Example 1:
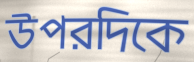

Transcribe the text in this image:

উপরদিকে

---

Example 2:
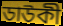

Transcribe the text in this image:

ডাউকী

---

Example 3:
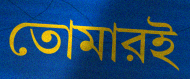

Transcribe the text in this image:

তোমারই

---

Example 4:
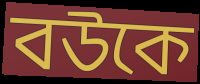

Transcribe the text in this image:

বউকে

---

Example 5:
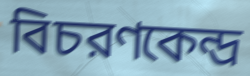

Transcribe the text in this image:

বিচরণকেন্দ্র